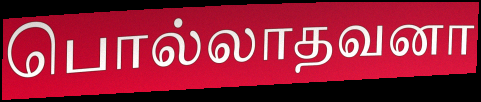
பொல்லாதவனா